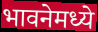
भावनेमध्ये